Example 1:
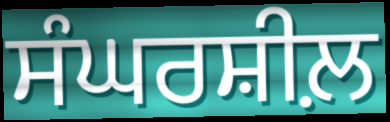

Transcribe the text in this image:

ਸੰਘਰਸ਼ੀਲ਼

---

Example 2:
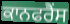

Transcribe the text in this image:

ਕਾਨਫਰੈਂਸ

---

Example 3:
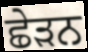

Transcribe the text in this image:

ਛੇੜਨ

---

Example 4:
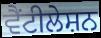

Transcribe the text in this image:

ਵੈਂਟੀਲੇਸ਼ਨ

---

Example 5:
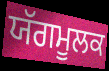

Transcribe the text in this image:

ਯੱਗਮੂਲਕ